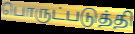
பொருட்படுத்தி